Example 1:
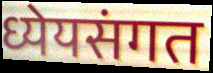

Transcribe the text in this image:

ध्येयसंगत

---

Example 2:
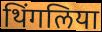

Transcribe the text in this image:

थिंगलिया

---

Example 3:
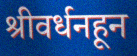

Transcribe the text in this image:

श्रीवर्धनहून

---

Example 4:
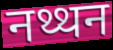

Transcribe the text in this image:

नथ्थन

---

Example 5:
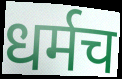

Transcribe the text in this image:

धर्मच